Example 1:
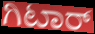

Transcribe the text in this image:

ಗಿಟಾರ್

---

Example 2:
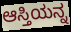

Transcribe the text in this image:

ಆಸ್ತಿಯನ್ನ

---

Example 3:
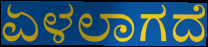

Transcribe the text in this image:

ಏಳಲಾಗದೆ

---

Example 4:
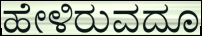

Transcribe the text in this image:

ಹೇಳಿರುವದೂ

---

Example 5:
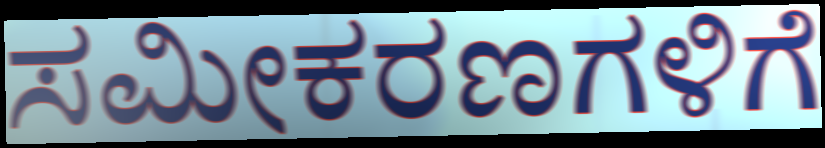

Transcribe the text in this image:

ಸಮೀಕರಣಗಳಿಗೆ